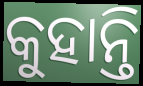
କୁହାନ୍ତି